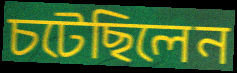
চটেছিলেন